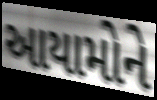
આયામોને